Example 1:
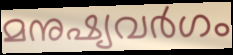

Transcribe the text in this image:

മനുഷ്യവർഗം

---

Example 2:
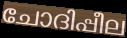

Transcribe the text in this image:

ചോദിപ്പീല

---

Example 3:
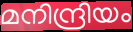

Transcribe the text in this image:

മനിന്ദ്രിയം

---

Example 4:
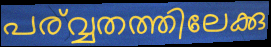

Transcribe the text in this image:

പര്വ്വതത്തിലേക്കു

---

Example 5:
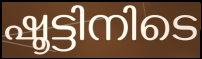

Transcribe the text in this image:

ഷൂട്ടിനിടെ